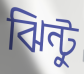
ঝিন্টু